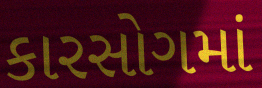
કારસોગમાં